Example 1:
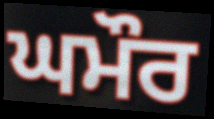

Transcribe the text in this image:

ਘਮੌਰ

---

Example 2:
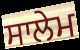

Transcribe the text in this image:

ਸਾਲੇਮ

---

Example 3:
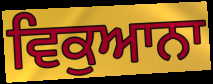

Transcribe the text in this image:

ਵਿਕੁਆਨਾ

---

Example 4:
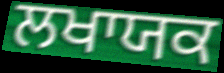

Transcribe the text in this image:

ਲਖਾਯਕ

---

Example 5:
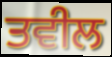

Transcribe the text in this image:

ਤਵੀਲ